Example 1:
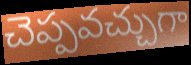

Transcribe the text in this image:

చెప్పవచ్చుగా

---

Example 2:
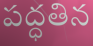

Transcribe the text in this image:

పద్ధతిన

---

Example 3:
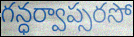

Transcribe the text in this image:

గన్ధర్వాప్సరసో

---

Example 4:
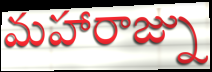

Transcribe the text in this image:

మహారాజ్ను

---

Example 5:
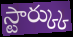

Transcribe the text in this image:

స్టార్క్కు